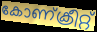
കോണ്ക്രീറ്റ്